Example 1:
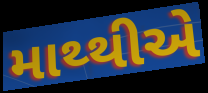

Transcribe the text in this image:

માથ્થીએ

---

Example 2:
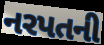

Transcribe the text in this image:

નરપતની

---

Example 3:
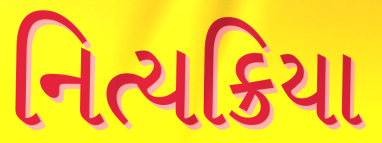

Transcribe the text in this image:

નિત્યક્રિયા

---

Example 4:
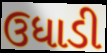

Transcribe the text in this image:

ઉધાડી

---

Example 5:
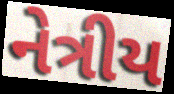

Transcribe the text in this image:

નેત્રીય